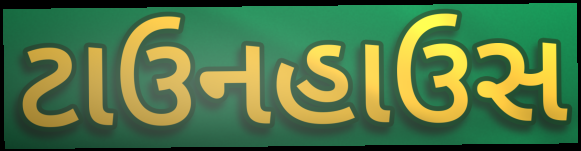
ટાઉનહાઉસ